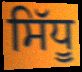
ਸਿੱਧੂ